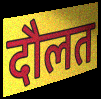
दौलत